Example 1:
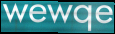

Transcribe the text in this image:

wewqe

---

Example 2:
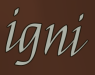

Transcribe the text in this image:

igni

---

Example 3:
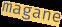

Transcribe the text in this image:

magane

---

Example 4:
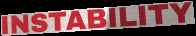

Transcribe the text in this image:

INSTABILITY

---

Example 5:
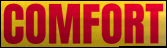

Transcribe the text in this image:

COMFORT